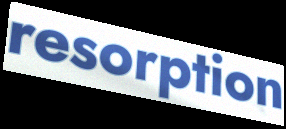
resorption